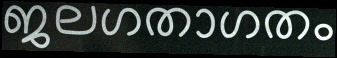
ജലഗതാഗതം